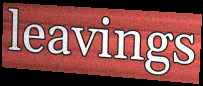
leavings